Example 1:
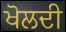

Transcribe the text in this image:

ਖੋਲਦੀ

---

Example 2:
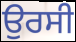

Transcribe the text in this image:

ਉਰਸੀ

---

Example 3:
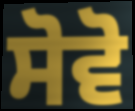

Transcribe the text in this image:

ਸੋਵੋ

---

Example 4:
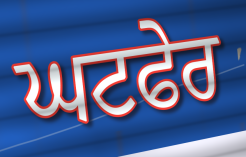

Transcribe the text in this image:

ਘਟਫੇਰ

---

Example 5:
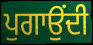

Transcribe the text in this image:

ਪੁਗਾਉਂਦੀ